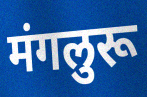
मंगलुरू